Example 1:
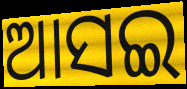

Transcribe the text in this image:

ଆସଇ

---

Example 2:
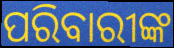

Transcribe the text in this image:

ପରିବାରୀଙ୍କ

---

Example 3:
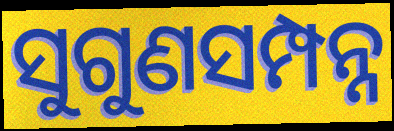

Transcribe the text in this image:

ସୁଗୁଣସମ୍ପନ୍ନ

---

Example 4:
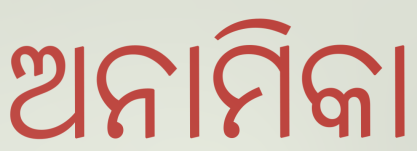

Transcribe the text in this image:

ଅନାମିକା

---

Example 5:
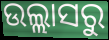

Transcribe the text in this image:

ଉଲ୍ଲାସରୁ